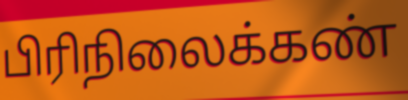
பிரிநிலைக்கண்